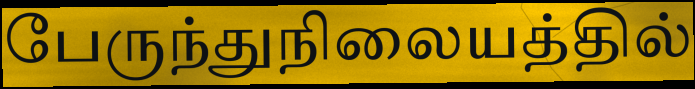
பேருந்துநிலையத்தில்